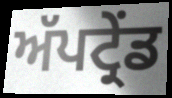
ਅੱਪਟ੍ਰੇਂਡ